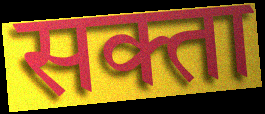
सक्‍ता